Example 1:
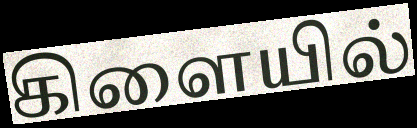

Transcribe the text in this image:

கிளையில்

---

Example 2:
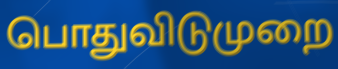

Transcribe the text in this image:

பொதுவிடுமுறை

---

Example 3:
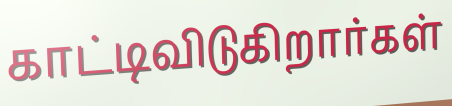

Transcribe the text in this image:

காட்டிவிடுகிறார்கள்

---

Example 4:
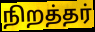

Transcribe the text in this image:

நிறத்தர்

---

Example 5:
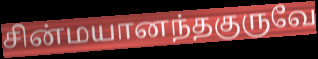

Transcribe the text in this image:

சின்மயானந்தகுருவே